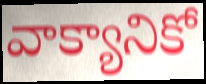
వాక్యానికో